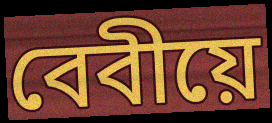
বেবীয়ে